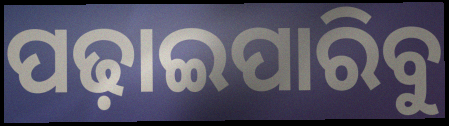
ପଢ଼ାଇପାରିବୁ